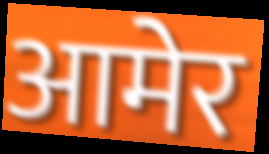
आमेर